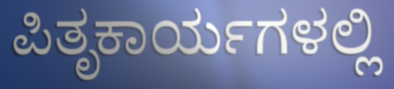
ಪಿತೃಕಾರ್ಯಗಳಲ್ಲಿ